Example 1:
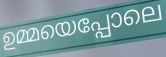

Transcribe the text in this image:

ഉമ്മയെപ്പോലെ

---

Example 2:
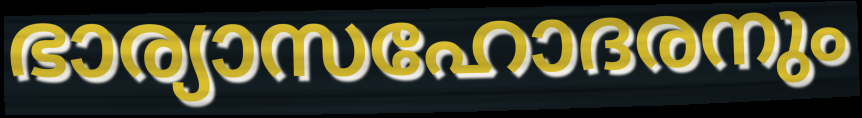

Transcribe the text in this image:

ഭാര്യാസഹോദരനും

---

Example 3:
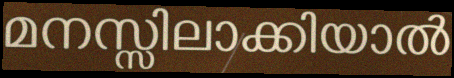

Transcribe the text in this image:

മനസ്സിലാക്കിയാൽ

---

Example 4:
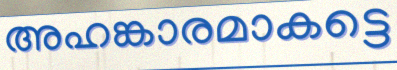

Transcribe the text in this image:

അഹങ്കാരമാകട്ടെ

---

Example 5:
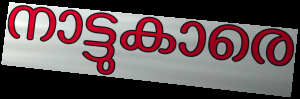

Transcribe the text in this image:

നാട്ടുകാരെ